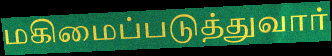
மகிமைப்படுத்துவார்